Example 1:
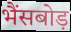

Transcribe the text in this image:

भैंसबोड़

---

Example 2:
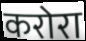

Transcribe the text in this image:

करोरा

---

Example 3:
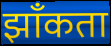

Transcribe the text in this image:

झाँकता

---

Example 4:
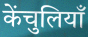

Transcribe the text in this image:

केंचुलियाँ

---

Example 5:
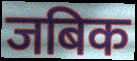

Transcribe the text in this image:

जबिक